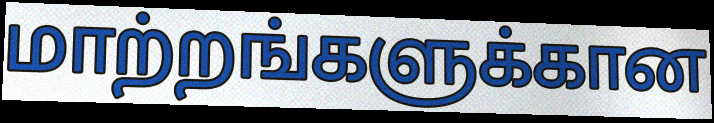
மாற்றங்களுக்கான